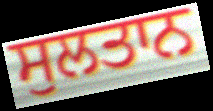
ਸੁਲਤਾਨ